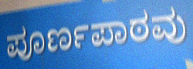
ಪೂರ್ಣಪಾಠವು